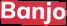
Banjo